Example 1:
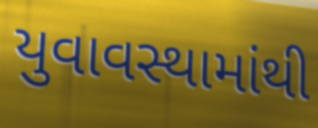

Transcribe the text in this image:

યુવાવસ્થામાંથી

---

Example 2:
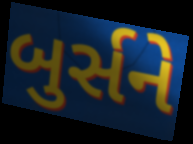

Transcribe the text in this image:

બુર્સને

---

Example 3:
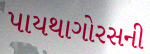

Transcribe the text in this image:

પાયથાગોરસની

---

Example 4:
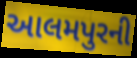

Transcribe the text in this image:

આલમપુરની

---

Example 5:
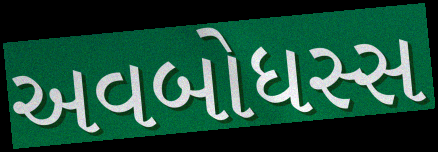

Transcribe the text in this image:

અવબોધસ્સ